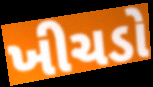
ખીચડો